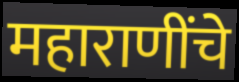
महाराणींचे